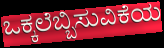
ಒಕ್ಕಲೆಬ್ಬಿಸುವಿಕೆಯ